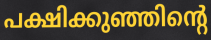
പക്ഷിക്കുഞ്ഞിന്റെ